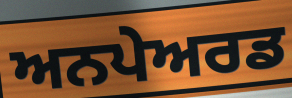
ਅਨਪੇਅਰਡ